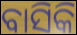
ବାସିକି